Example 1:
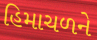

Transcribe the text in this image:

હિમાચળને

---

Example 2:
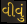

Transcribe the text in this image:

વીવું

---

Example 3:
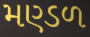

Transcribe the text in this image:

મણ્ડળ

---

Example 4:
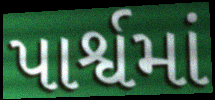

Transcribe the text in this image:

પાર્શ્વમાં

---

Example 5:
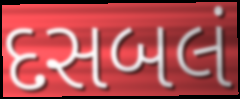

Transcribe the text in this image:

દસબલં